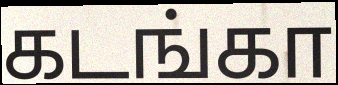
கடங்கா